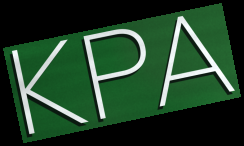
KPA